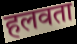
हलवता